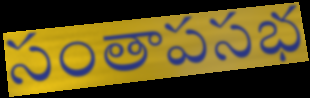
సంతాపసభ